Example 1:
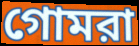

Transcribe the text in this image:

গোমরা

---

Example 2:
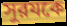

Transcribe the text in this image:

সুরযকে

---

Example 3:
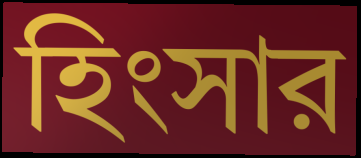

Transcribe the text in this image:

হিংসার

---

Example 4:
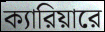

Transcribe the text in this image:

ক্যারিয়ারে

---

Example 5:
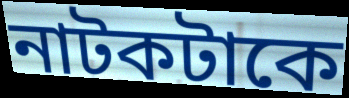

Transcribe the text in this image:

নাটকটাকে